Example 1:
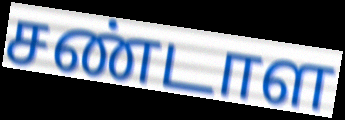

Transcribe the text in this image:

சண்டாள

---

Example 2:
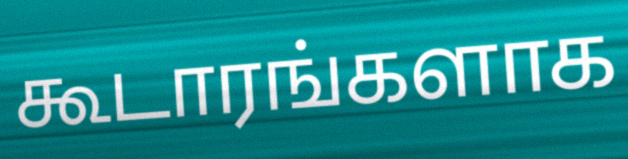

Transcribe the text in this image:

கூடாரங்களாக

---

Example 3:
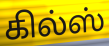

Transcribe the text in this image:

கில்ஸ்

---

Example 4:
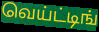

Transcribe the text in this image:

வெய்ட்டிங்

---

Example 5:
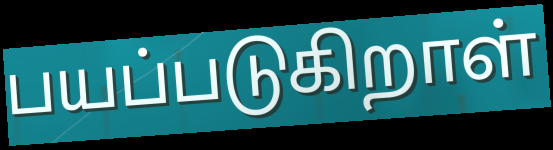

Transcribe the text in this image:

பயப்படுகிறாள்